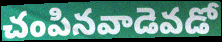
చంపినవాడెవడో